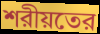
শরীয়তের